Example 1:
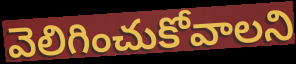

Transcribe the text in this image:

వెలిగించుకోవాలని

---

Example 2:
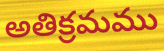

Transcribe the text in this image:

అతిక్రమము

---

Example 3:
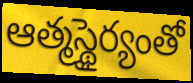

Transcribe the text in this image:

ఆత్మస్థైర్యంతో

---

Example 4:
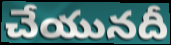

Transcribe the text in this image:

చేయునదీ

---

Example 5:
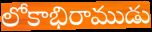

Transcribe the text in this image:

లోకాభిరాముడు